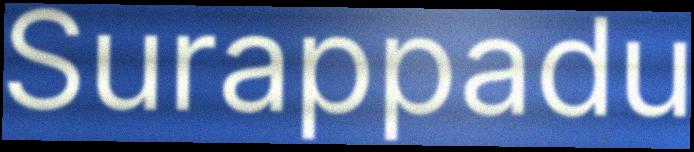
Surappadu